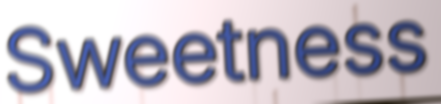
Sweetness